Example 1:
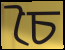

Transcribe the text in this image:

চৈ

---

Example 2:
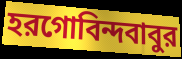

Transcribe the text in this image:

হরগোবিন্দবাবুর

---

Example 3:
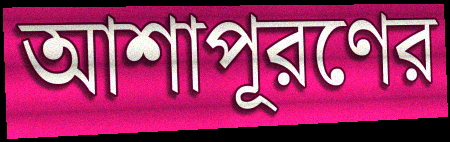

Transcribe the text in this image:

আশাপূরণের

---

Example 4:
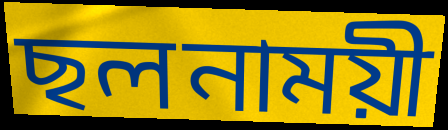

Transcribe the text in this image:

ছলনাময়ী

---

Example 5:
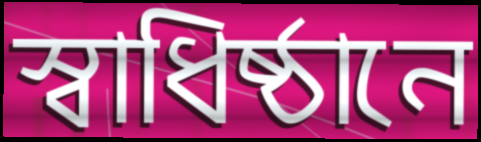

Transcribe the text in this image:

স্বাধিষ্ঠানে